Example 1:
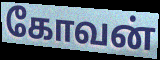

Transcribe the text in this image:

கோவன்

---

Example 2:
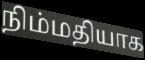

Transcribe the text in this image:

நிம்மதியாக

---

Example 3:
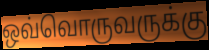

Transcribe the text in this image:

ஒவ்வொருவருக்கு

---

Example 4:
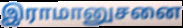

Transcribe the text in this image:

இராமானுசனை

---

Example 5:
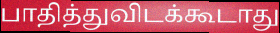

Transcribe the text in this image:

பாதித்துவிடக்கூடாது